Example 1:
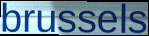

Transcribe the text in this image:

brussels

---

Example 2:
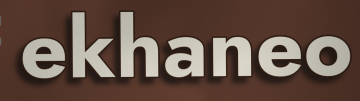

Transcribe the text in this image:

ekhaneo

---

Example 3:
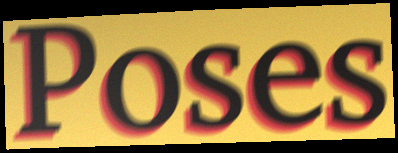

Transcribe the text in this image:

Poses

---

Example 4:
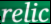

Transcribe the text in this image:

relic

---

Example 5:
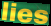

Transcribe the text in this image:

lies